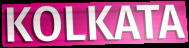
KOLKATA